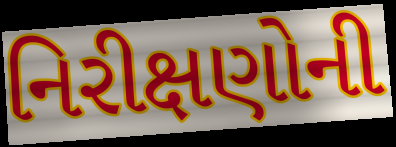
નિરીક્ષણોની